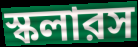
স্কলারস